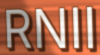
RNII